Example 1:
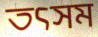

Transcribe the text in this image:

তৎসম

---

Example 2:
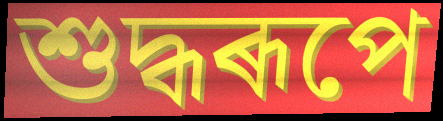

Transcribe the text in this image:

শুদ্ধৰূপে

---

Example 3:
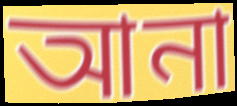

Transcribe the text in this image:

আনা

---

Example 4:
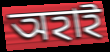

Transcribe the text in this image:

অহাই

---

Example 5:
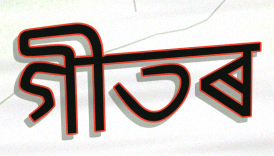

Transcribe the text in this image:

গীতৰ